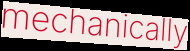
mechanically